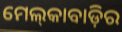
ମେଲ୍‌କାବାଡ଼ିର